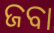
ଜବା